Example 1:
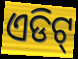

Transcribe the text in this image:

ଏଡିଟ୍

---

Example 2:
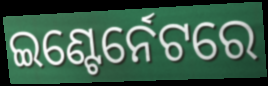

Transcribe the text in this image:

ଇଣ୍ଟେର୍ନେଟରେ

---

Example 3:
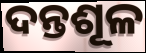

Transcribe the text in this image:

ଦନ୍ତଶୂଳ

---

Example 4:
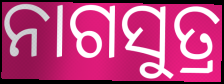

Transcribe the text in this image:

ନାଗସୁତ୍ର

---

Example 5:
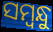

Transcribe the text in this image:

ସମ୍ବନ୍ଧୁ